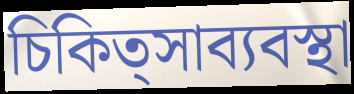
চিকিত্সাব্যবস্থা